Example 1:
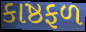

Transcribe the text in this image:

કાષ્ઠફળ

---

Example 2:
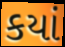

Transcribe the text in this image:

કયાં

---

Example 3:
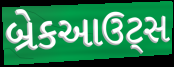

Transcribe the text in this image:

બ્રેકઆઉટ્સ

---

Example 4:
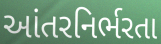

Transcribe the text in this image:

આંતરનિર્ભરતા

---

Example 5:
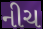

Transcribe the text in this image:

નીચ